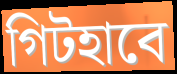
গিটহাবে